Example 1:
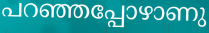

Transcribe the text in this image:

പറഞ്ഞപ്പോഴാണു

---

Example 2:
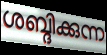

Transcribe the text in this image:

ശബ്ദിക്കുന്ന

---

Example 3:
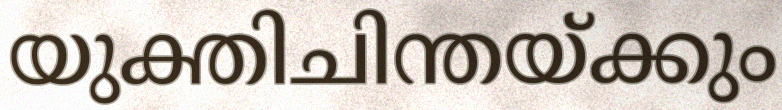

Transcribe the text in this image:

യുക്തിചിന്തയ്ക്കും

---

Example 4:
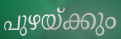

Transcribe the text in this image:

പുഴയ്ക്കും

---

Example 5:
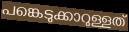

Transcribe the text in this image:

പങ്കെടുക്കാറുള്ളത്